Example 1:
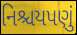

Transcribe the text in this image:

નિશ્ચયપણું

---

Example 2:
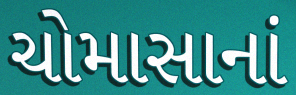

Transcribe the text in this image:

ચોમાસાનાં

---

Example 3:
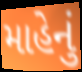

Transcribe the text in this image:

માહેનું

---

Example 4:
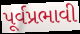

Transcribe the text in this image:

પૂર્વપ્રભાવી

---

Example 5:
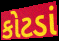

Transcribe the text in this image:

કોટડાં